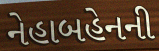
નેહાબહેનની